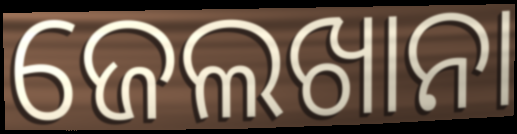
ଜେଲଖାନା